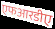
एफआरडीए